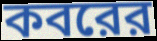
কবরের